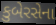
કુબેરસેના